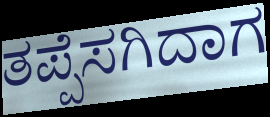
ತಪ್ಪೆಸಗಿದಾಗ